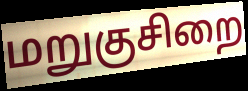
மறுகுசிறை